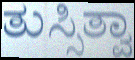
ತುಸ್ಸಿತ್ವಾ